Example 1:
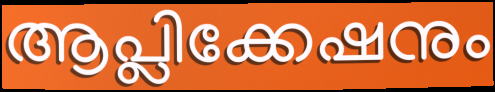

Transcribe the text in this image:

ആപ്ലിക്കേഷനും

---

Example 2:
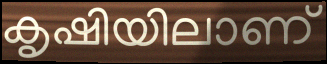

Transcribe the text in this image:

കൃഷിയിലാണ്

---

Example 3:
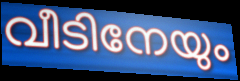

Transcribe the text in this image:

വീടിനേയും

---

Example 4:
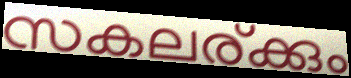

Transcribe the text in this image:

സകലര്ക്കും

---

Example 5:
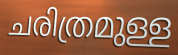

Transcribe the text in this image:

ചരിത്രമുള്ള